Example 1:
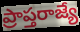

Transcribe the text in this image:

ప్రాప్తరాజ్యే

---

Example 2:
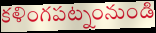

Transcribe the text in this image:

కళింగపట్నంనుండి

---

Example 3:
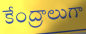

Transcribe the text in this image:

కేంద్రాలుగా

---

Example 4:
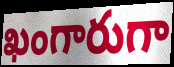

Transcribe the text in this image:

ఖంగారుగా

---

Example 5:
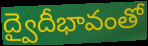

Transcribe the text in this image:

ద్వైదీభావంతో